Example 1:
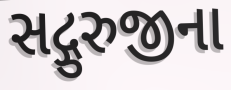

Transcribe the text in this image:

સદ્ગુરુજીના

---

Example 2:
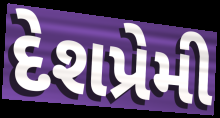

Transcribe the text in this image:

દેશપ્રેમી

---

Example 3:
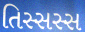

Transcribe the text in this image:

તિસ્સસ્સ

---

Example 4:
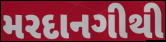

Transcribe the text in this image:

મરદાનગીથી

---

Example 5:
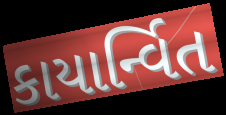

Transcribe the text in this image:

કાયાર્ન્વિત